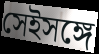
সেইসঙ্গে